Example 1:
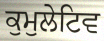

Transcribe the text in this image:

ਕੁਮੁਲੇਟਿਵ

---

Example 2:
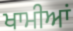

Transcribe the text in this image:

ਖਾਮੀਆਂ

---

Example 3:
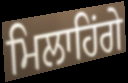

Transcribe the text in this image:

ਮਿਲਾਹਿਂਗੇ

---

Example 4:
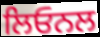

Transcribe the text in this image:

ਲਿਓਨਲ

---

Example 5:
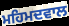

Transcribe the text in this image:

ਮਹਿਮਦਵਾਲ